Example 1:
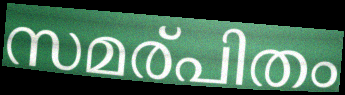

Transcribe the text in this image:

സമര്പിതം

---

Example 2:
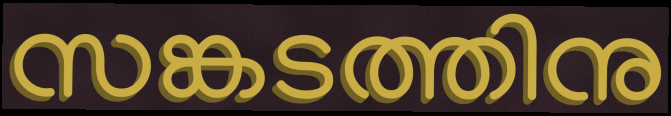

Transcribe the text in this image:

സങ്കടത്തിനു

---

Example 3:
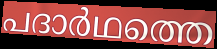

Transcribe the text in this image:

പദാർഥത്തെ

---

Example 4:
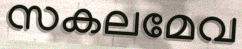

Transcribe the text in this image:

സകലമേവ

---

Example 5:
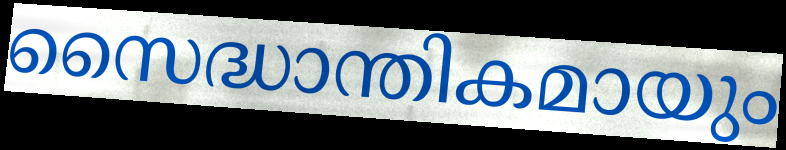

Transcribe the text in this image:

സൈദ്ധാന്തികമായും